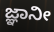
ಜ್ಞಾನೀ